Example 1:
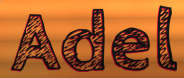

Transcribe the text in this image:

Adel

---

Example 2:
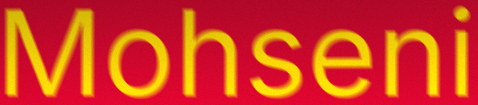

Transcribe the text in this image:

Mohseni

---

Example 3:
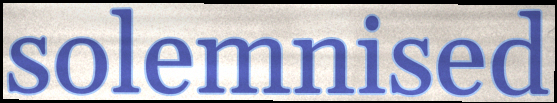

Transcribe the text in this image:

solemnised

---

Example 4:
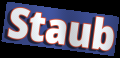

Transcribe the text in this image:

Staub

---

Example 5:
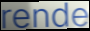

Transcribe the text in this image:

rende